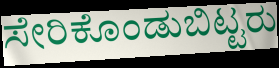
ಸೇರಿಕೊಂಡುಬಿಟ್ಟರು